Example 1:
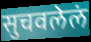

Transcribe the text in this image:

सुचवलेलं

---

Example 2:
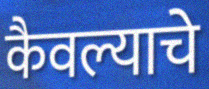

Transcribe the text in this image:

कैवल्याचे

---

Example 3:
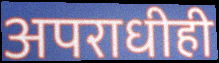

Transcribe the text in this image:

अपराधीही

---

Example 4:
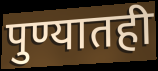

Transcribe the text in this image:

पुण्यातही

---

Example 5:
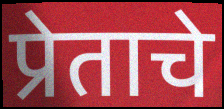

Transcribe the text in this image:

प्रेताचे